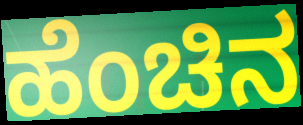
ಹೆಂಚಿನ